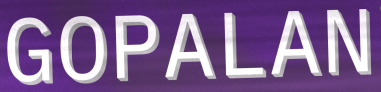
GOPALAN